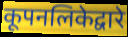
कूपनलिकेद्वारे